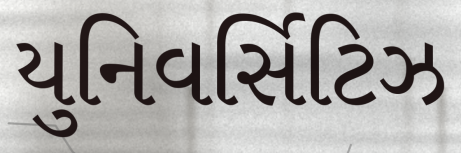
યુનિવર્સિટિઝ